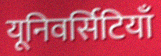
यूनिवर्सिटियाँ